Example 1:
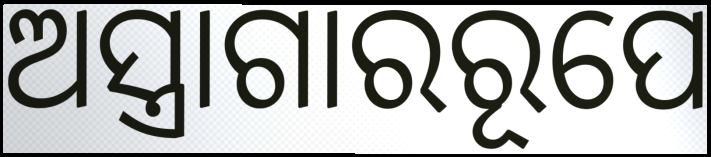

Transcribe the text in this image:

ଅସ୍ତ୍ରାଗାରରୂପେ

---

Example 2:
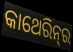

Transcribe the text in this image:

କାଥେରିନ୍‌ର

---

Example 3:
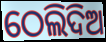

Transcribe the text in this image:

ଠେଲିଦିଅ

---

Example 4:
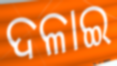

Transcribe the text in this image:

ଦଳାଇ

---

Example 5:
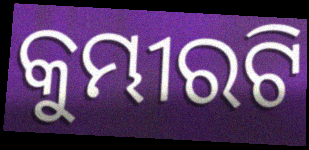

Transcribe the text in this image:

କୁମ୍ଭୀରଟି